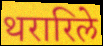
थरारिले